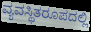
ವ್ಯವಸ್ಥಿತರೂಪದಲ್ಲಿ